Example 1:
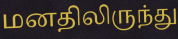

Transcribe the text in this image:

மனதிலிருந்து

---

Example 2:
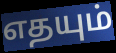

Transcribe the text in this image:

எதயும்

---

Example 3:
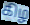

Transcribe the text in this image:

கிழ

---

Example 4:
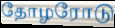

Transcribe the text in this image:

தோழரோடு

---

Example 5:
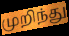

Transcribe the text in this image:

முறிந்து